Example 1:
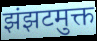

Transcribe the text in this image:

झंझटमुक्त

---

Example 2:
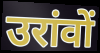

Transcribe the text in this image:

उरांवों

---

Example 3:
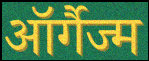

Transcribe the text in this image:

ऑर्गैज्म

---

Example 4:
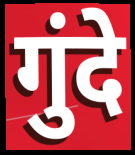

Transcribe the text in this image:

गुंदे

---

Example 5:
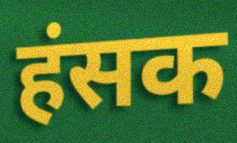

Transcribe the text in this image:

हंसक